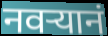
नवऱ्यानं